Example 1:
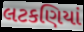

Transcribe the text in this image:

લટકણિયાં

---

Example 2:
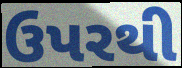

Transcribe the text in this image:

ઉપરથી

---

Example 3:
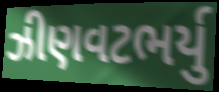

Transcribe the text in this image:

ઝીણવટભર્યુ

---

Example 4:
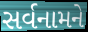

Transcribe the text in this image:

સર્વનામને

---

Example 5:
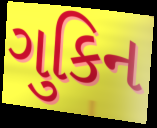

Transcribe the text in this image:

ગુકિન